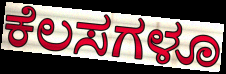
ಕೆಲಸಗಳೂ